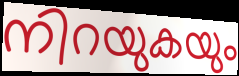
നിറയുകയും